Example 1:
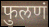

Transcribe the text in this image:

फुलणं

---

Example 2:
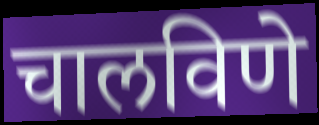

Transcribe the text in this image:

चालविणे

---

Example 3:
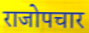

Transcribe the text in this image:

राजोपचार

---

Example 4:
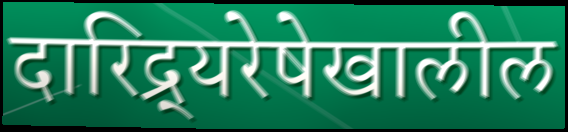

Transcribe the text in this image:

दारिद्र्यरेषेखालील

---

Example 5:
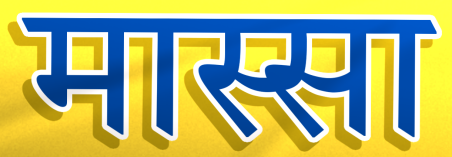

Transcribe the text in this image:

मास्सा